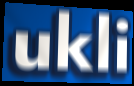
ukli